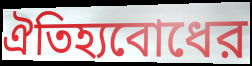
ঐতিহ্যবোধের